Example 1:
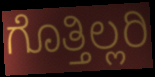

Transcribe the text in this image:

ಗೊತ್ತಿಲ್ಲರಿ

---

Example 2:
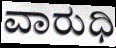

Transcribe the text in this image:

ವಾರುಧಿ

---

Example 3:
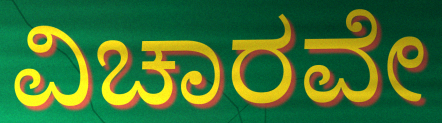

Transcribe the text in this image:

ವಿಚಾರವೇ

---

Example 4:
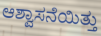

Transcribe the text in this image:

ಆಶ್ವಾಸನೆಯಿತ್ತು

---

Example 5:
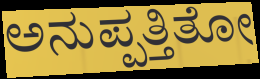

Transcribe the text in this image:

ಅನುಪ್ಪತ್ತಿತೋ